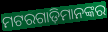
ମଟରଗାଡ଼ିମାନଙ୍କର